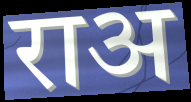
राअ